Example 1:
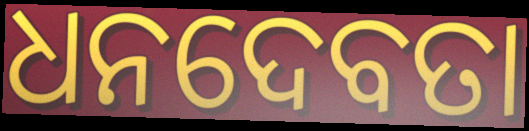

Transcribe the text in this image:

ଧନଦେବତା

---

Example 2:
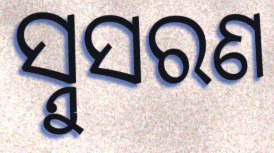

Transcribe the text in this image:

ସ୍ନୁସରଣ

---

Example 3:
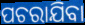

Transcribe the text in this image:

ପଚରାଯିବା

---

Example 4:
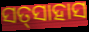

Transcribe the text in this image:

ସତ୍‌ସାହାସ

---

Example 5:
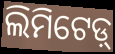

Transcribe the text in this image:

ଲିମିଟେଡ଼୍